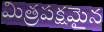
మిత్రపక్షమైన